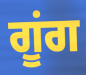
ਗੂਂਗ